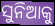
ସୁନିଆକୁ